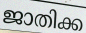
ജാതിക്ക